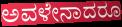
ಅವಳೇನಾದರೂ